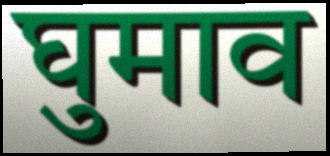
घुमाव